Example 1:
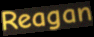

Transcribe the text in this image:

Reagan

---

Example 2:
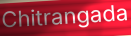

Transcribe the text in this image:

Chitrangada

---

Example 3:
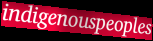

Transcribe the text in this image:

indigenouspeoples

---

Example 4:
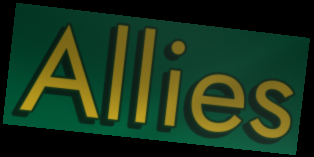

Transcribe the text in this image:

Allies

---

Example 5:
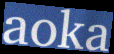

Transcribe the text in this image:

aoka